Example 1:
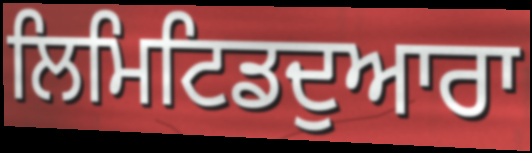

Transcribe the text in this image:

ਲਿਮਿਟਿਡਦੁਆਰਾ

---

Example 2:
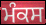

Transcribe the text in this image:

ਮੰਕਸ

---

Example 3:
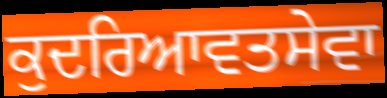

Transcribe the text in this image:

ਕੁਦਰਿਆਵਤਸੇਵਾ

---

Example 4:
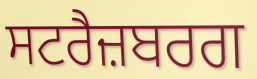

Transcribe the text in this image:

ਸਟਰੈਜ਼ਬਰਗ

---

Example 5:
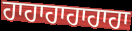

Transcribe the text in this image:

ਹਾਹਾਹਾਹਾਹਾਹਾ